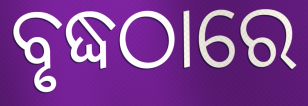
ବୃଦ୍ଧଠାରେ